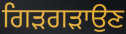
ਗਿੜਗੜਾਉਣ